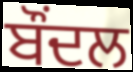
ਬੌਂਦਲ